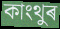
কাংথুৰ